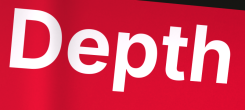
Depth